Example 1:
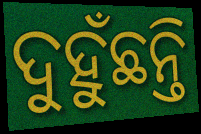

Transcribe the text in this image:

ଦୁହୁଁଛନ୍ତି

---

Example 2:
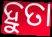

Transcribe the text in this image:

ହୁତା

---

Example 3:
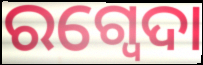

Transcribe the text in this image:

ରଗ୍ବେଦା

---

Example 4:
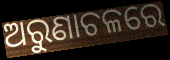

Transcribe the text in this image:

ଅରୁଣାଚଳରେ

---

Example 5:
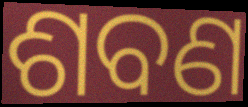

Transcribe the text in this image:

ଶବଣ